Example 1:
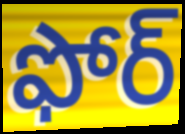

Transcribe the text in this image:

ఫోర్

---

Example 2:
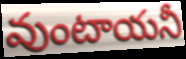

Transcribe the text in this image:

వుంటాయనీ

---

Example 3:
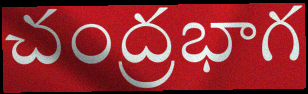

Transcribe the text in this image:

చంద్రభాగ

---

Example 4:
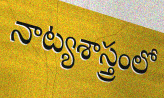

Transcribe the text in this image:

నాట్యశాస్త్రంలో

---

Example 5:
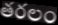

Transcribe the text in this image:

తరలం